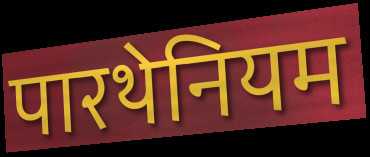
पारथेनियम